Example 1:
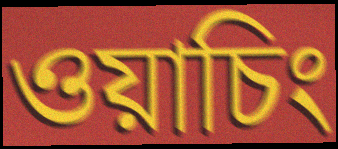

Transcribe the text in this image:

ওয়াচিং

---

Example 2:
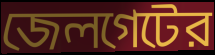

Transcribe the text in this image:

জেলগেটের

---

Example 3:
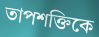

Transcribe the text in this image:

তাপশক্তিকে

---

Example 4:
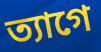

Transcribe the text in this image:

ত্যাগে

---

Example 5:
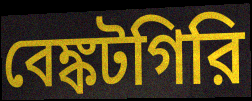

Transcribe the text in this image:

বেঙ্কটগিরি